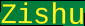
Zishu